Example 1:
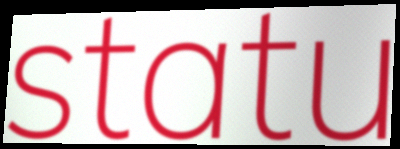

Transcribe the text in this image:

statu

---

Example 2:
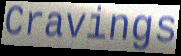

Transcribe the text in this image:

Cravings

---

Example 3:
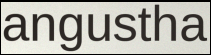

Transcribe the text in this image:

angustha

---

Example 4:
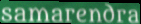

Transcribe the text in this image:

samarendra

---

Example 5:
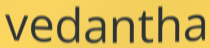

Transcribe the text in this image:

vedantha